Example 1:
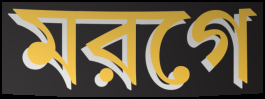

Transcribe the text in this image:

মরগে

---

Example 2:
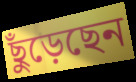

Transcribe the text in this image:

ছুঁড়েছেন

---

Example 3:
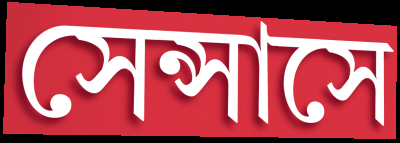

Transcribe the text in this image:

সেন্সাসে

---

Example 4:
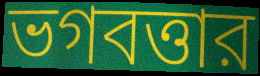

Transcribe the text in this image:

ভগবত্তার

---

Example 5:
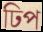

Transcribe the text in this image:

ঢিপ